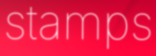
stamps